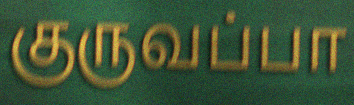
குருவப்பா